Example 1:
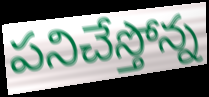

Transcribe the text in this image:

పనిచేస్తోన్న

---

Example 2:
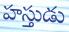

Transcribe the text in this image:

హస్తుడు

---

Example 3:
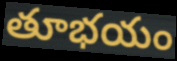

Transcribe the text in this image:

తూభయం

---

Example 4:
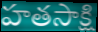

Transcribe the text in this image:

హతసాక్షి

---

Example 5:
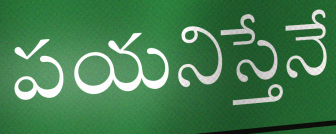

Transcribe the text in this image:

పయనిస్తేనే